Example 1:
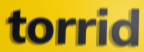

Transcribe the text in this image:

torrid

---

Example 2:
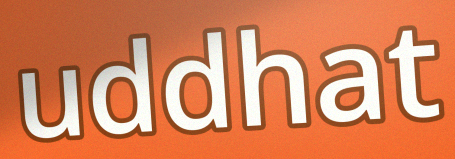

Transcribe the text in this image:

uddhat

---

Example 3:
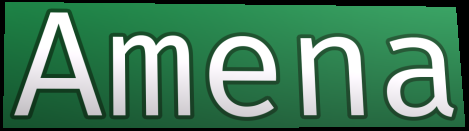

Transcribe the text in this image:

Amena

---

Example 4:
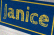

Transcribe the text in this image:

Janice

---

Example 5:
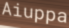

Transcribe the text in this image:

Aiuppa